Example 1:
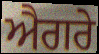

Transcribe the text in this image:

ਐਗਰੇ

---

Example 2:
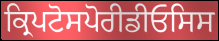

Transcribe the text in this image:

ਕ੍ਰਿਪਟੋਸਪੋਰੀਡੀਓਸਿਸ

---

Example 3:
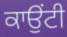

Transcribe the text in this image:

ਕਾਉਂਟੀ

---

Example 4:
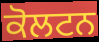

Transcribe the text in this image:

ਕੋਲਟਨ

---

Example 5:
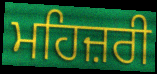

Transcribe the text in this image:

ਮਹਿਜ਼ਰੀ